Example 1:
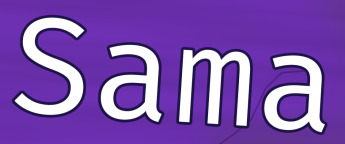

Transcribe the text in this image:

Sama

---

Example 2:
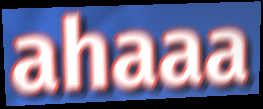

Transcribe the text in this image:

ahaaa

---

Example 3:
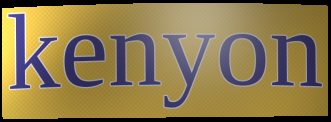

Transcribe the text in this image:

kenyon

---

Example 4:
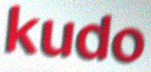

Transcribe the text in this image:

kudo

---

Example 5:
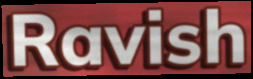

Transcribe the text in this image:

Ravish